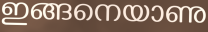
ഇങ്ങനെയാണു